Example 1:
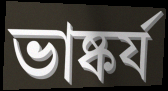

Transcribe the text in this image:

ভাষ্কর্য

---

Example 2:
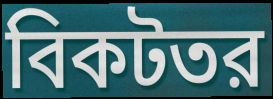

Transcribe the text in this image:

বিকটতর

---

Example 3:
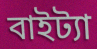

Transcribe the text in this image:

বাইট্যা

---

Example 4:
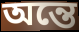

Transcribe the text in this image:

অন্তে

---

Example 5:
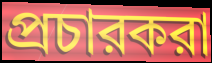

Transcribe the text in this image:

প্রচারকরা